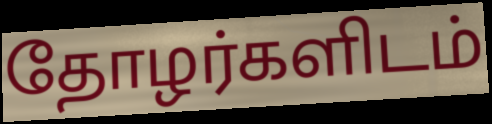
தோழர்களிடம்